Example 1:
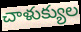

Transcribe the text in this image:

చాళుక్యుల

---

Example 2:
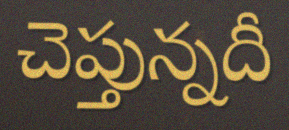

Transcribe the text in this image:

చెప్తున్నదీ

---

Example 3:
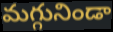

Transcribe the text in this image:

మగ్గునిండా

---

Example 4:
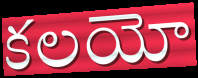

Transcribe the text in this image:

కలయో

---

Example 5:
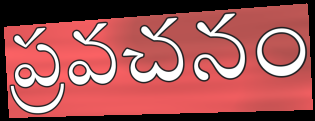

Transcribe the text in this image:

ప్రవచనం